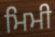
ਮਿਮੀ